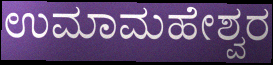
ಉಮಾಮಹೇಶ್ವರ